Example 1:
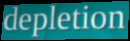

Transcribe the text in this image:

depletion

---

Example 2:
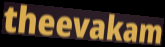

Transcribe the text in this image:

theevakam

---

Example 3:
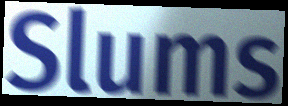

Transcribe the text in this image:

Slums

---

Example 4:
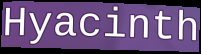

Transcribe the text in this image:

Hyacinth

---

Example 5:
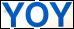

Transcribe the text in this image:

YOY